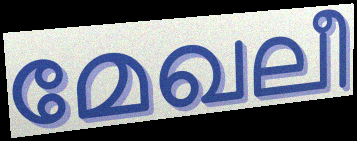
മേഖലീ